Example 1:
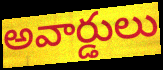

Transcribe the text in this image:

అవార్డులు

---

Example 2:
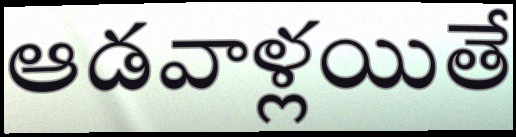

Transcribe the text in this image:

ఆడవాళ్లయితే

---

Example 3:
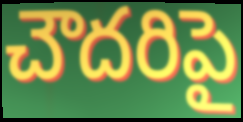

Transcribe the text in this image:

చౌదరిపై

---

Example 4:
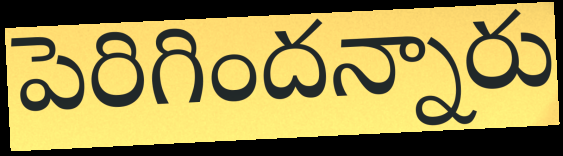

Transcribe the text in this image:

పెరిగిందన్నారు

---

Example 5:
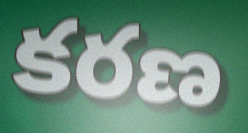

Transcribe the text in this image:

కరణ